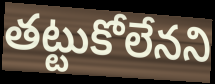
తట్టుకోలేనని